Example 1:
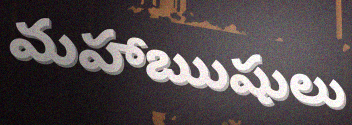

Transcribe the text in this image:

మహాఋషులు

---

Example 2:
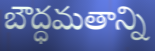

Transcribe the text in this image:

బౌద్ధమతాన్ని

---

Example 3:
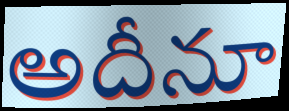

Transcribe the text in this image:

అదీనూ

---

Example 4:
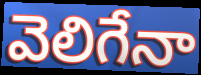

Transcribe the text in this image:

వెలిగేనా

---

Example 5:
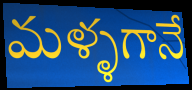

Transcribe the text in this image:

మళ్ళగానే